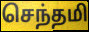
செந்தமி